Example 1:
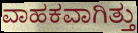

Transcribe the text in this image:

ವಾಹಕವಾಗಿತ್ತು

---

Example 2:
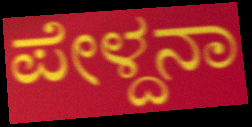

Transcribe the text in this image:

ಪೇಳ್ದನಾ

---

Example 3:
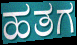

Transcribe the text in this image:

ಹತಗ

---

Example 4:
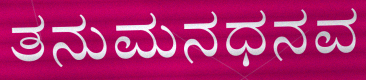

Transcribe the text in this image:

ತನುಮನಧನವ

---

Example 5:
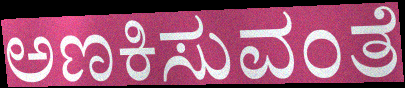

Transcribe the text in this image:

ಅಣಕಿಸುವಂತೆ